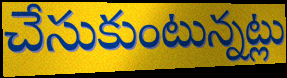
చేసుకుంటున్నట్లు